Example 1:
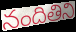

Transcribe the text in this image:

నందితిని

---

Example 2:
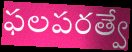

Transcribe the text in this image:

ఫలపరత్వే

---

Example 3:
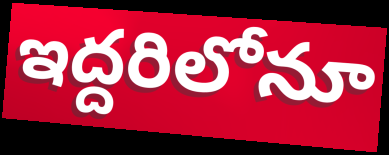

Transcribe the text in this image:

ఇద్దరిలోనూ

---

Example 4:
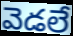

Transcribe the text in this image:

వెడలే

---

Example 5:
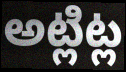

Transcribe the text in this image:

అట్లిట్ల